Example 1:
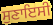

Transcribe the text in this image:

ਸੁਣਾਇਸੀ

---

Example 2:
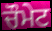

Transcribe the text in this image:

ਚੌਮੇਟ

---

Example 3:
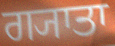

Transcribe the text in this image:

ਗ੍ਯਾਤਾ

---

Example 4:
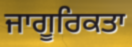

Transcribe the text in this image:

ਜਾਗੂਰਿਕਤਾ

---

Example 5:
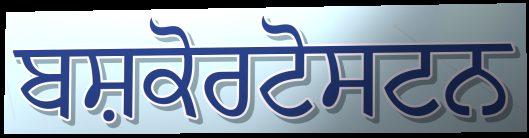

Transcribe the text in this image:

ਬਸ਼ਕੋਰਟੋਸਟਨ